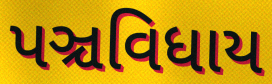
પઞ્ચવિધાય